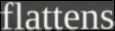
flattens